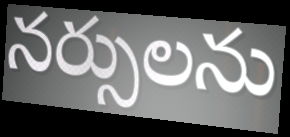
నర్సులను